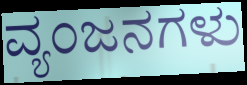
ವ್ಯಂಜನಗಳು